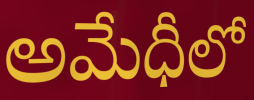
అమేధీలో